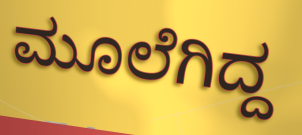
ಮೂಲೆಗಿದ್ದ